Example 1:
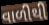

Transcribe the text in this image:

વાળીથી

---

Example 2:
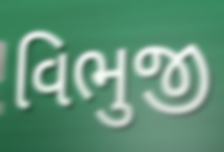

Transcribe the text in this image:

વિભુજી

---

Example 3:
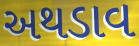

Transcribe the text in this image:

અથડાવ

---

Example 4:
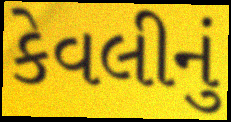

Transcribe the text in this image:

કેવલીનું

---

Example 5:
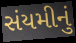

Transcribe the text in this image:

સંયમીનું